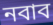
নবাব